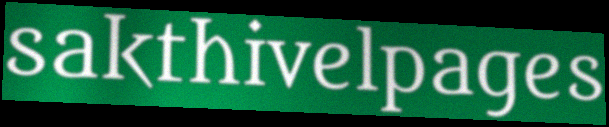
sakthivelpages